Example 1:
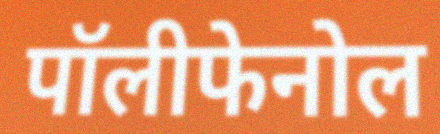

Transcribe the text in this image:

पॉलीफेनोल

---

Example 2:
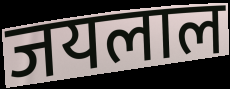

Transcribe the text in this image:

जयलाल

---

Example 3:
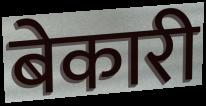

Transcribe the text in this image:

बेकारी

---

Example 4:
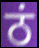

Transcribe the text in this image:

ठं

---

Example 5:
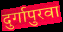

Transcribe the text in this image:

दुर्गापुरवा